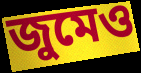
জুমেও